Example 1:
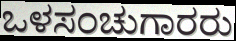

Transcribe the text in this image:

ಒಳಸಂಚುಗಾರರು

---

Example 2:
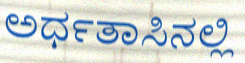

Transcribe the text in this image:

ಅರ್ಧತಾಸಿನಲ್ಲಿ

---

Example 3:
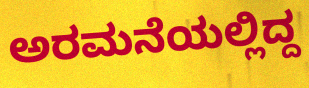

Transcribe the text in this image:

ಅರಮನೆಯಲ್ಲಿದ್ದ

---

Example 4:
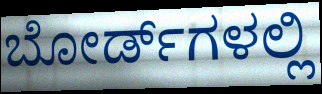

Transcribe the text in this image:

ಬೋರ್ಡ್‌ಗಳಲ್ಲಿ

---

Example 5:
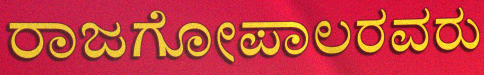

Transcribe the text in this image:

ರಾಜಗೋಪಾಲರವರು